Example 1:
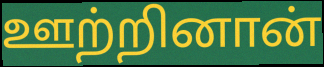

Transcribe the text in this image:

ஊற்றினான்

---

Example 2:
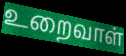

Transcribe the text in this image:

உறைவாள்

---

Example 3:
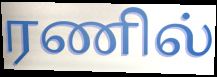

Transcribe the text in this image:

ரணில்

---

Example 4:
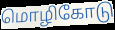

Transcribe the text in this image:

மொழிகோடு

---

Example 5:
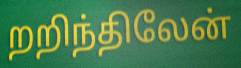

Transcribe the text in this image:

றறிந்திலேன்